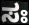
ಸಃ